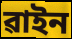
ৱাইন